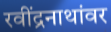
रवींद्रनाथांवर